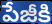
పేజీకి